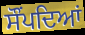
ਸੌਂਪਦਿਆਂ